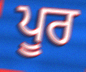
ਪੂਰ